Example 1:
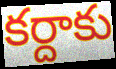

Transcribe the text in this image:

కర్దాకు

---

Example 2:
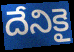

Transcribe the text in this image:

దేనికై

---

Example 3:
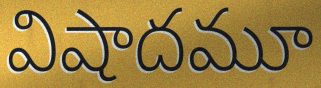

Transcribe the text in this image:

విషాదమూ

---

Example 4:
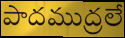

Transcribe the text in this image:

పాదముద్రలే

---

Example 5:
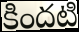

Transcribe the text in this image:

కిందటి